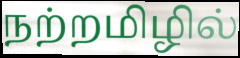
நற்றமிழில்